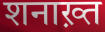
शनाख़्त